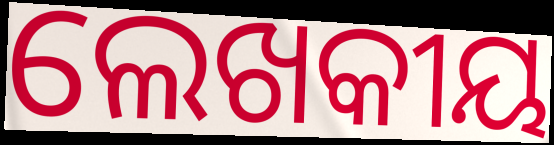
ଲେଖକୀୟ